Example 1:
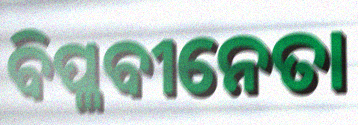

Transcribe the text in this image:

ବିପ୍ଳବୀନେତା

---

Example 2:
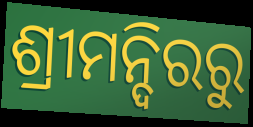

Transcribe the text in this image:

ଶ୍ରୀମନ୍ଦିରରୁ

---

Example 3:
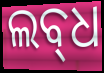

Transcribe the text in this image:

ଲବ୍‍ଧ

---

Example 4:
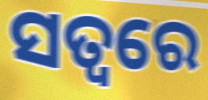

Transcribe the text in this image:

ସତ୍ଵରେ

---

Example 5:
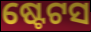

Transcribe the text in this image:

ଷ୍ଟେଟସ